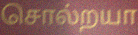
சொல்றயா